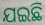
ଯଇଛି